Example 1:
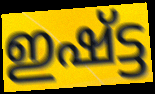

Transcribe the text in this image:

ഇഷ്ട്ട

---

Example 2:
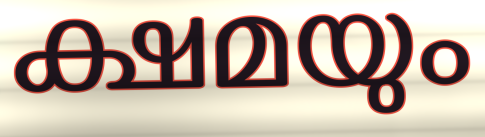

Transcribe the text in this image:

ക്ഷമയും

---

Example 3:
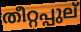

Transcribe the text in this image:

തീറ്റപ്പുല്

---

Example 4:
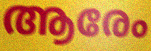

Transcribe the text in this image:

ആരേം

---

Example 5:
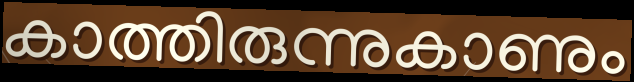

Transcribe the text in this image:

കാത്തിരുന്നുകാണും